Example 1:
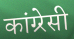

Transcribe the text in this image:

कांग्र्रेसी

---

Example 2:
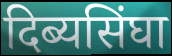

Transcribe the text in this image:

दिब्यसिंघा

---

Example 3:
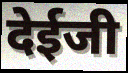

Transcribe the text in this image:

देईजी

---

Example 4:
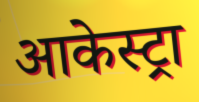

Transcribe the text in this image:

आकेस्ट्रा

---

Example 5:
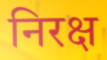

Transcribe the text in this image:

निरक्ष